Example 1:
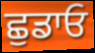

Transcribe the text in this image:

ਛੁਡਾਓ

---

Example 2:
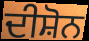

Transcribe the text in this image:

ਦੀਸ਼ੋਨ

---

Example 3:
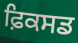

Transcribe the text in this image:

ਫ਼ਿਕਸਡ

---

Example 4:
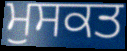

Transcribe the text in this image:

ਮੁਸਕਤ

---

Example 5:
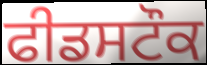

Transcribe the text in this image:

ਫੀਡਸਟੌਕ